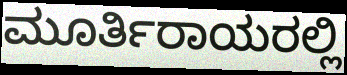
ಮೂರ್ತಿರಾಯರಲ್ಲಿ